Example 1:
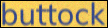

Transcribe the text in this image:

buttock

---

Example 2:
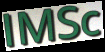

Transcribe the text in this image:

IMSc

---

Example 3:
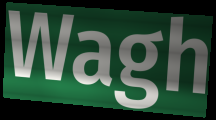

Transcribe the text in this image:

Wagh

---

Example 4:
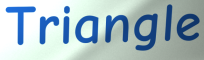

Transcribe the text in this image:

Triangle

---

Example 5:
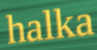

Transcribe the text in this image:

halka